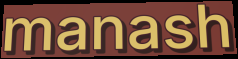
manash